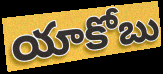
యాకోబు